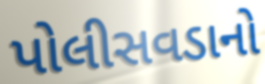
પોલીસવડાનો